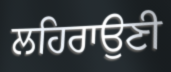
ਲਹਿਰਾਉਣੀ